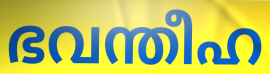
ഭവന്തീഹ